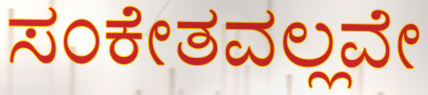
ಸಂಕೇತವಲ್ಲವೇ